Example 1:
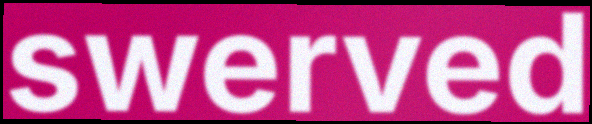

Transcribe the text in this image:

swerved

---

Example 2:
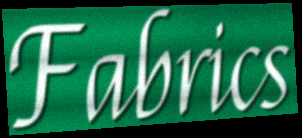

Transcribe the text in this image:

Fabrics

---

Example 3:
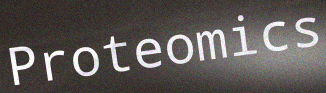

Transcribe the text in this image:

Proteomics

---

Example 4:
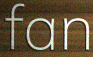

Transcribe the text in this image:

fan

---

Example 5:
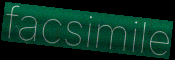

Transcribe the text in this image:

facsimile